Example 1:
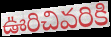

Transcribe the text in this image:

ఊరిచివరికి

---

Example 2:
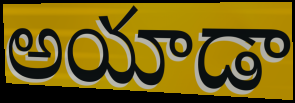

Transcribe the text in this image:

అయాడా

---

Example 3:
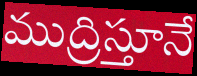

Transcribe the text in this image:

ముద్రిస్తూనే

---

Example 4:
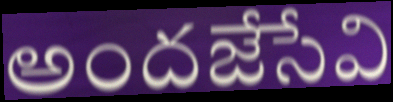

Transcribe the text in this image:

అందజేసేవి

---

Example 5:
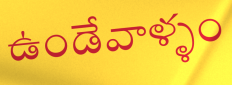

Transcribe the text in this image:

ఉండేవాళ్ళం